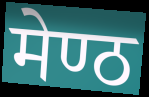
मेण्ठ